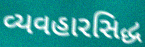
વ્યવહારસિદ્ધ